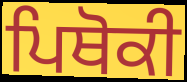
ਪਿਥੋਕੀ